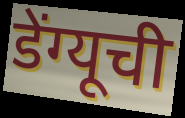
डेंग्यूची